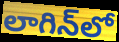
లాగిన్‌లో